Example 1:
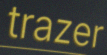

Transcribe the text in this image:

trazer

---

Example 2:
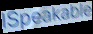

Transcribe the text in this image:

ISpeakable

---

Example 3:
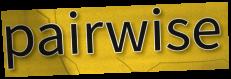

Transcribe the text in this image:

pairwise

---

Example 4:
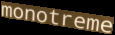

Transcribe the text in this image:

monotreme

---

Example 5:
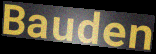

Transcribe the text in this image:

Bauden